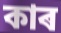
কাৰ